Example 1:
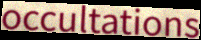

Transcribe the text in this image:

occultations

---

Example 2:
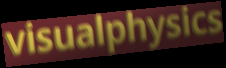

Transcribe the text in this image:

visualphysics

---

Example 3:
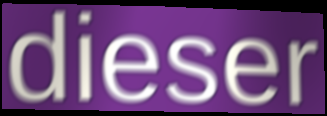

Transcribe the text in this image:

dieser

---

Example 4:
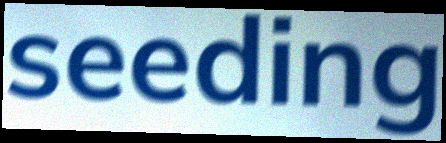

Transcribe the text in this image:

seeding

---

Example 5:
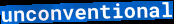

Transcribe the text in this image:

unconventional